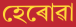
হেৰোৱা